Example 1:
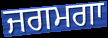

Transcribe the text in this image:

ਜਗਮਗਾ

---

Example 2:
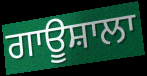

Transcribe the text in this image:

ਗਾਊਸ਼ਾਲਾ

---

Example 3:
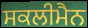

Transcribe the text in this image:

ਸਕਲੀਮੈਨ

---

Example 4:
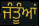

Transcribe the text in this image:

ਜੰਤੂੰਆਂ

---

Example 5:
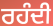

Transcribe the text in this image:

ਰਹੰਦੀ